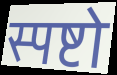
स्पष्टो